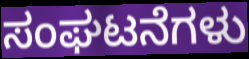
ಸಂಘಟನೆಗಳು